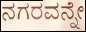
ನಗರವನ್ನೇ